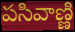
పసివాణ్ణి